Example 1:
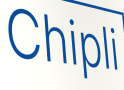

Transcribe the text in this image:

Chipli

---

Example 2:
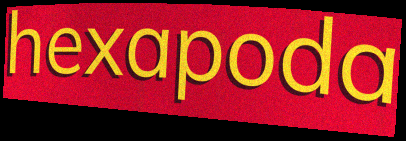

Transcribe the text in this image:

hexapoda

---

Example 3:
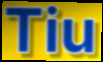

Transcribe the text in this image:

Tiu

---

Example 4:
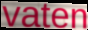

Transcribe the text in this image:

vaten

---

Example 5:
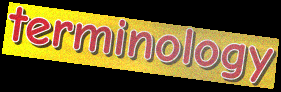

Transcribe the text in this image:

terminology